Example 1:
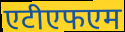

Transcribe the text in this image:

एटीएफएम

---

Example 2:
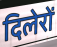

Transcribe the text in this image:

दिलेरों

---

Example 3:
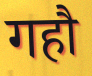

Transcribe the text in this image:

गहौ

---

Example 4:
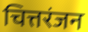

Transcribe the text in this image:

चित्तरंजन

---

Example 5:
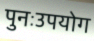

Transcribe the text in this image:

पुनःउपयोग